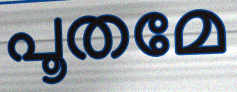
പൂതമേ